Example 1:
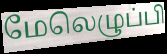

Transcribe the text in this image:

மேலெழுப்பி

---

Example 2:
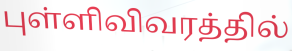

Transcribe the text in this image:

புள்ளிவிவரத்தில்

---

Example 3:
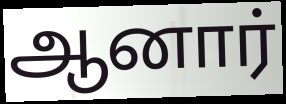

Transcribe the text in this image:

ஆனார்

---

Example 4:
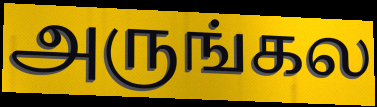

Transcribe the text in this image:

அருங்கல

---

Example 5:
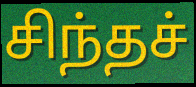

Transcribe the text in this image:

சிந்தச்